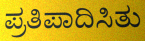
ಪ್ರತಿಪಾದಿಸಿತು